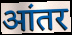
आंतर